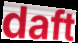
daft